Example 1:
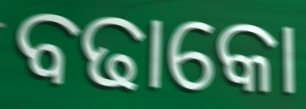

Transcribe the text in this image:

ବଢାକୋ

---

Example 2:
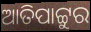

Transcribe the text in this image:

ଆତିପାଟ୍ଟୁର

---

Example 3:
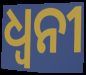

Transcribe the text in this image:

ଧ୍ୱନୀ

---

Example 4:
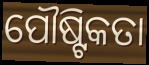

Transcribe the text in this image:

ପୌଷ୍ଟିକତା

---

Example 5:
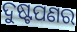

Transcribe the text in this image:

ଦୁଷ୍ଟପଣର